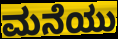
ಮನೆಯು